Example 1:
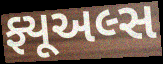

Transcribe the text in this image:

ફ્યૂઅલ્સ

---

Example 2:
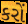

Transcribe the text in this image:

કરોં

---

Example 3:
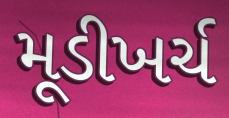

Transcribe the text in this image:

મૂડીખર્ચ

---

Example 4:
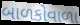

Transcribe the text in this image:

બાળકોવાળા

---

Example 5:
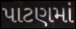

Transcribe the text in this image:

પાટણમાં